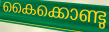
കൈക്കൊണ്ടു